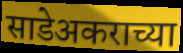
साडेअकराच्या